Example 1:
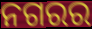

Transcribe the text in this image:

ନଗରର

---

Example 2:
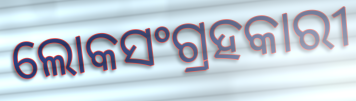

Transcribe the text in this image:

ଲୋକସଂଗ୍ରହକାରୀ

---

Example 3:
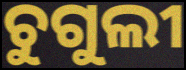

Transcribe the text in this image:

ଚୁଗୁଲୀ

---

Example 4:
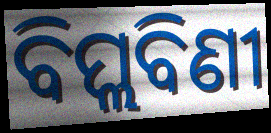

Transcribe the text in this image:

ବିପ୍ଲବିଣୀ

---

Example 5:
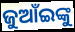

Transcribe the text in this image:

ଜୁଆଁଇଙ୍କୁ